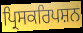
ਪ੍ਰਿਸਕਰਿਪਸ਼ਨ